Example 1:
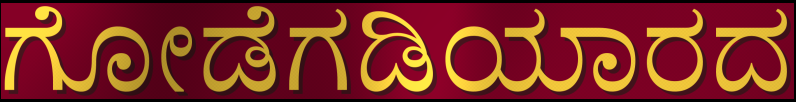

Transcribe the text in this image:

ಗೋಡೆಗಡಿಯಾರದ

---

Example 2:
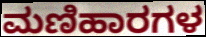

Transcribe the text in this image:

ಮಣಿಹಾರಗಳ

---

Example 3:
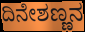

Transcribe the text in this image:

ದಿನೇಶಣ್ಣನ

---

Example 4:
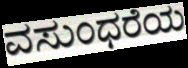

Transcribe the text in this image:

ವಸುಂಧರೆಯ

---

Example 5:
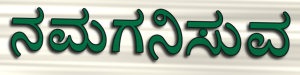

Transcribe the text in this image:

ನಮಗನಿಸುವ